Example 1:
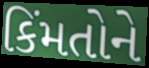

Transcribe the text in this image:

કિંમતોને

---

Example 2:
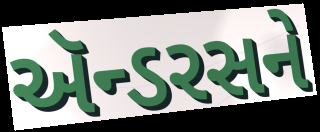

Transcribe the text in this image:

ઍન્ડરસને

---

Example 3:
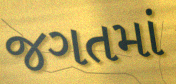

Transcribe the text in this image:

જગતમાં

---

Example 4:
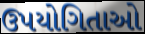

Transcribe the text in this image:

ઉપયોગિતાઓ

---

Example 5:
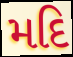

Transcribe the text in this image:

મદિ